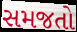
સમજતો